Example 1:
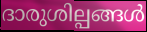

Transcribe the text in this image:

ദാരുശില്പങ്ങൾ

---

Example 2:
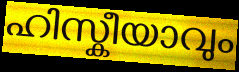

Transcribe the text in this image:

ഹിസ്കീയാവും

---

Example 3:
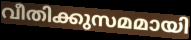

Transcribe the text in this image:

വീതിക്കുസമമായി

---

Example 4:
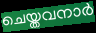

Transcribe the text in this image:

ചെയ്തവനാർ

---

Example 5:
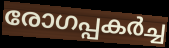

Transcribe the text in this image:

രോഗപ്പകർച്ച